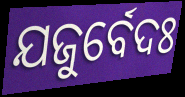
ଯଜୁର୍ବେଦଃ